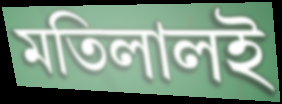
মতিলালই